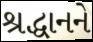
શ્રદ્ધાનને